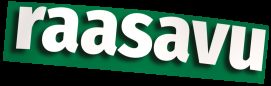
raasavu